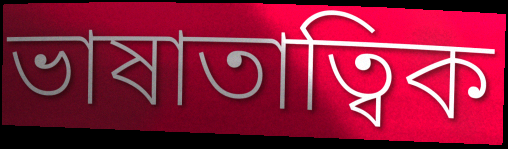
ভাষাতাত্বিক